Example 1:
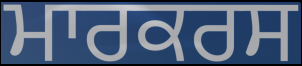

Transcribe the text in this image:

ਮਾਰਕਰਸ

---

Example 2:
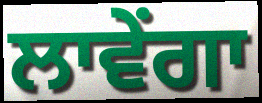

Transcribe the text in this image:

ਲਾਵੇਂਗਾ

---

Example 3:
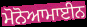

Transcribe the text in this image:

ਮੋਨੋਆਮਾਈਨ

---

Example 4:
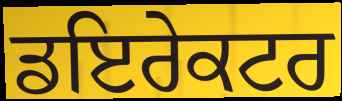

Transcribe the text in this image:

ਡਇਰੇਕਟਰ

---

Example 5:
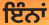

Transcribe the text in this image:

ਇੰਨਾਂ